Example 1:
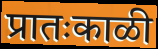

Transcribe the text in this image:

प्रातःकाळी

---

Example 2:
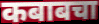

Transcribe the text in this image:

कबाबचा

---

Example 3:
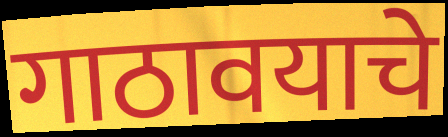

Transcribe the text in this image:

गाठावयाचे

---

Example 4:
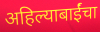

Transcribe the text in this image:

अहिल्याबाईंचा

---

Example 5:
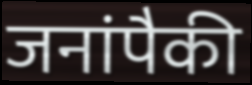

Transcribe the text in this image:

जनांपैकी